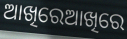
ଆଖିରେଆଖିରେ